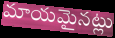
మాయమైనట్లు